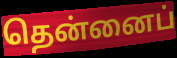
தென்னைப்